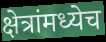
क्षेत्रांमध्येच